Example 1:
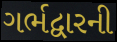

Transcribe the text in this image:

ગર્ભદ્વારની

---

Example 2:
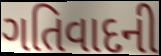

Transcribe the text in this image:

ગતિવાદની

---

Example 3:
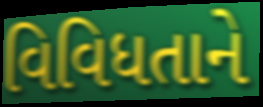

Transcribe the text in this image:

વિવિધતાને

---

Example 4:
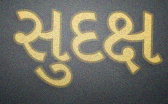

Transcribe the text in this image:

સુદક્ષ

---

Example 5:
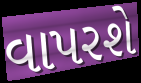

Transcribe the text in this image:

વાપરશે